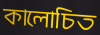
কালোচিত